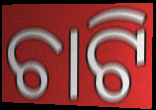
ଚାଟି